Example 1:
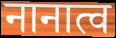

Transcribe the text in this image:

नानात्व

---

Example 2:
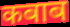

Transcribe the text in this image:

कबाब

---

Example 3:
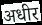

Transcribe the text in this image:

अधीर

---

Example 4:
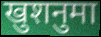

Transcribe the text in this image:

खुशनुमा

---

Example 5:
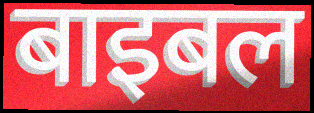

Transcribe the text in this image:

बाइबल